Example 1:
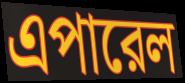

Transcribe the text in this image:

এপারেল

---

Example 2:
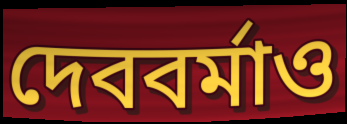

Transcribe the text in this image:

দেববর্মাও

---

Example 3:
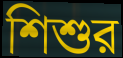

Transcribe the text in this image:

শিশুর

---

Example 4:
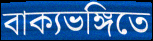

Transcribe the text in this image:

বাক্যভঙ্গিতে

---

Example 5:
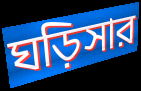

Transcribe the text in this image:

ঘড়িসার